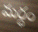
మర్ధం